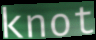
knot